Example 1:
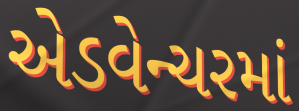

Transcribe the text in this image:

એડવેન્ચરમાં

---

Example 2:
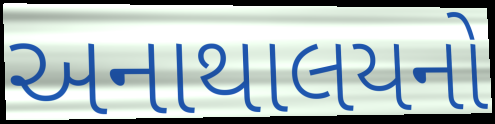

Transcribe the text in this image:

અનાથાલયનો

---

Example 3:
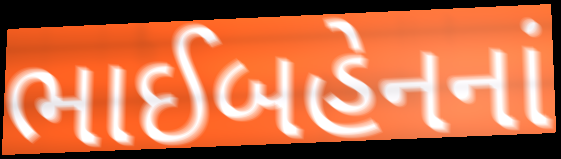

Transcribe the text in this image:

ભાઈબહેનનાં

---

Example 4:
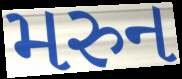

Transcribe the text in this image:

મરુન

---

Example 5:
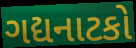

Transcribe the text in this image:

ગદ્યનાટકો